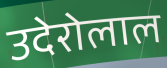
उदेरोलाल